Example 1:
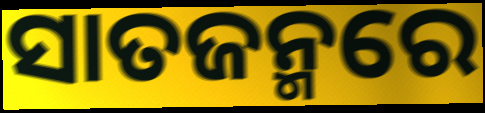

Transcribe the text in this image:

ସାତଜନ୍ମରେ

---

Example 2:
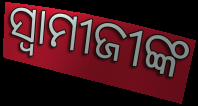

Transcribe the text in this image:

ସ୍ଵାମୀଜୀଙ୍କ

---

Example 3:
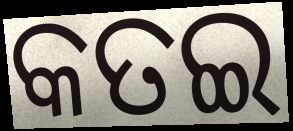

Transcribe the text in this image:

କତଇ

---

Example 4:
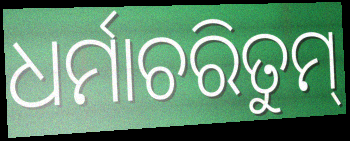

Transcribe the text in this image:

ଧର୍ମାଚରିତୁମ୍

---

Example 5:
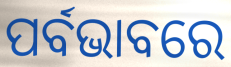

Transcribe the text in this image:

ପର୍ବଭାବରେ